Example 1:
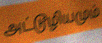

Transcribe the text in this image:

அட்டூழியமும்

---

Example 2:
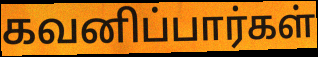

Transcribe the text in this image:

கவனிப்பார்கள்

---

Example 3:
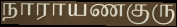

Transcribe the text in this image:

நாராயணகுரு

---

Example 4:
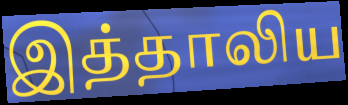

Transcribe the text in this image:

இத்தாலிய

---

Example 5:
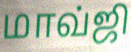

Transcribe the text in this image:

மாவ்ஜி